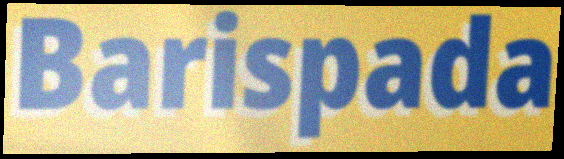
Barispada